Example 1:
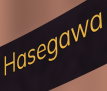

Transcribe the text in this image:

Hasegawa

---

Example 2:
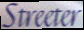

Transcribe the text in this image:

Streeter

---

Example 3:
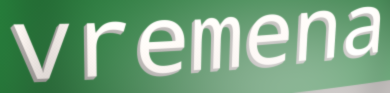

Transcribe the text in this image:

vremena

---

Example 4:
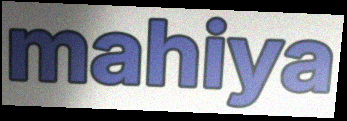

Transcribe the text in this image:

mahiya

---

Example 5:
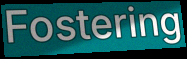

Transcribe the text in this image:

Fostering